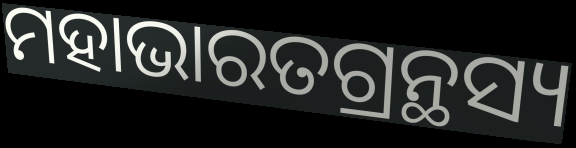
ମହାଭାରତଗ୍ରନ୍ଥସ୍ୟ